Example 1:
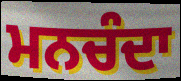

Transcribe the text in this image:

ਮਨਚੰਦਾ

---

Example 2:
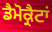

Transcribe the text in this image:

ਡੈਮੋਕ੍ਰੈਟਾਂ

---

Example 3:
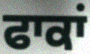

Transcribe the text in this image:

ਫਾਕਾਂ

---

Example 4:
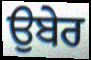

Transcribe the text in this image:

ਉਬੇਰ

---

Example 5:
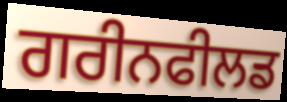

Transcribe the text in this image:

ਗਰੀਨਫੀਲਡ